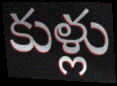
కుళ్లు